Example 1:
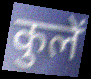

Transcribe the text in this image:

कुलें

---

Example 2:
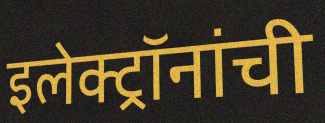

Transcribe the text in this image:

इलेक्ट्रॉनांची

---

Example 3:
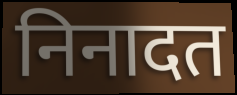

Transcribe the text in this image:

निनादत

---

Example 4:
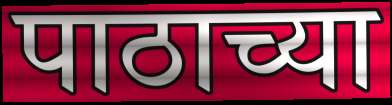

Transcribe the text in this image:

पाठाच्या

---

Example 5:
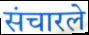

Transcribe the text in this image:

संचारले